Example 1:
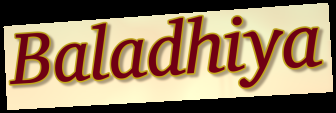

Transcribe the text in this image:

Baladhiya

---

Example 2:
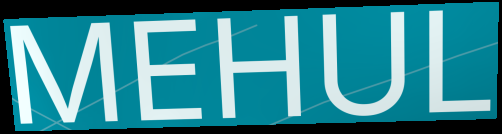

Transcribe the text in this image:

MEHUL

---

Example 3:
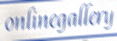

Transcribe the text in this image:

onlinegallery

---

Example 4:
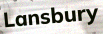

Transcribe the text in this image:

Lansbury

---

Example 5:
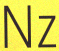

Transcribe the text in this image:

Nz